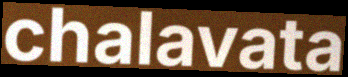
chalavata